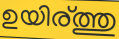
ഉയിര്ത്തു